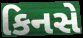
કિનસે